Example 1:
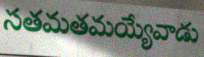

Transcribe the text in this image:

సతమతమయ్యేవాడు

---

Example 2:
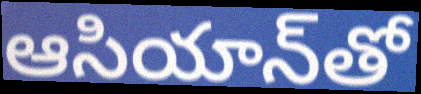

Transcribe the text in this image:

ఆసియాన్‌తో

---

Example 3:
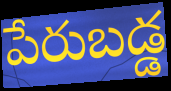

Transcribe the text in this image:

పేరుబడ్డ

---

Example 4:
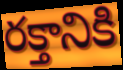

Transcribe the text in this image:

రక్తానికి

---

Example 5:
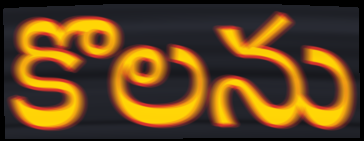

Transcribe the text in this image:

కొలను